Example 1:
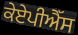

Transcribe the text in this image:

ਕੇਏਪੀਐੱਸ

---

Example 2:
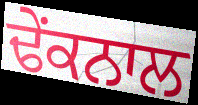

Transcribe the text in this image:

ਢੇਂਕਨਾਲ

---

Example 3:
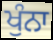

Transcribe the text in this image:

ਖੁੰਨਾ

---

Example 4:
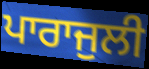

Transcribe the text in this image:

ਪਾਰਾਜੁਲੀ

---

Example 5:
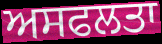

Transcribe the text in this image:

ਅਸਫਲਤਾ